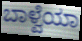
ಬಾಳ್ವೆಯಾ